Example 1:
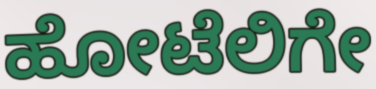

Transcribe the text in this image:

ಹೋಟೆಲಿಗೇ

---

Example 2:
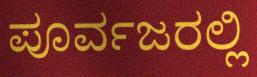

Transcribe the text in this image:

ಪೂರ್ವಜರಲ್ಲಿ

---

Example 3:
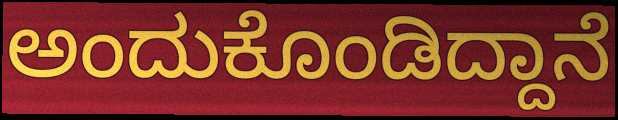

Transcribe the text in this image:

ಅಂದುಕೊಂಡಿದ್ದಾನೆ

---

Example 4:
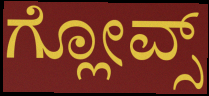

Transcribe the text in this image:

ಗ್ಲೋವ್ಸ್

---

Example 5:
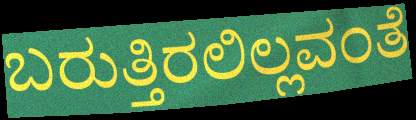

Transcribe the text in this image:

ಬರುತ್ತಿರಲಿಲ್ಲವಂತೆ